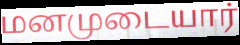
மனமுடையார்